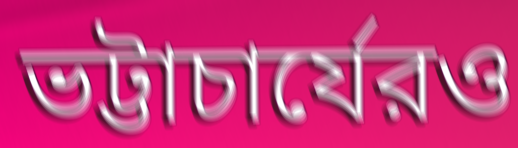
ভট্টাচার্যেরও